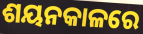
ଶୟନକାଳରେ